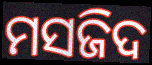
ମସଜିଦ